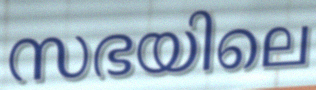
സഭയിലെ